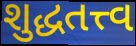
શુદ્ધતત્ત્વ